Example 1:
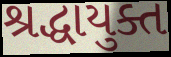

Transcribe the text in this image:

શ્રદ્ધાયુક્ત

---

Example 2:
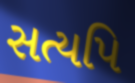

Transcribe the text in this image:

સત્યપિ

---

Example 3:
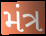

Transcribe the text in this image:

મંત્ર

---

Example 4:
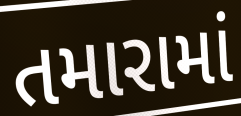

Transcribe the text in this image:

તમારામાં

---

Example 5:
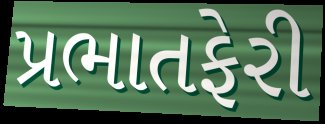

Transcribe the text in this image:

પ્રભાતફેરી